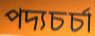
পদ্যচর্চা